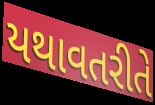
યથાવતરીતે